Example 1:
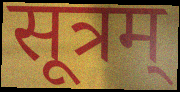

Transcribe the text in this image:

सूत्रम्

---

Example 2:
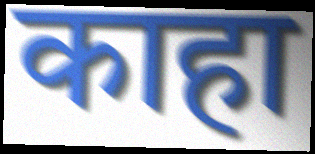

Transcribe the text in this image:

काहा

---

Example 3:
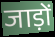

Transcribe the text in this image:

जाड़ों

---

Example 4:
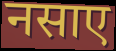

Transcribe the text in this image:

नसाए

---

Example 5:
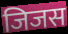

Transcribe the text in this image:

जिजस